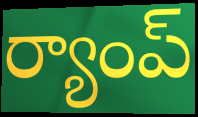
ర్యాంప్